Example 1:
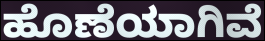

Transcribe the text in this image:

ಹೊಣೆಯಾಗಿವೆ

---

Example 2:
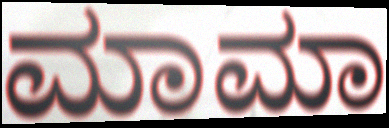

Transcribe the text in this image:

ಮಾಮಾ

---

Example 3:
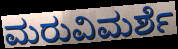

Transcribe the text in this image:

ಮರುವಿಮರ್ಶೆ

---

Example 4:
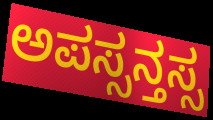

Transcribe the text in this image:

ಅಪಸ್ಸನ್ತಸ್ಸ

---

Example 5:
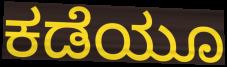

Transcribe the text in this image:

ಕಡೆಯೂ